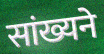
सांख्यने